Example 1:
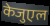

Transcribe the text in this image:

केजुएल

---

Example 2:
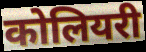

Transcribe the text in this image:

कोलियरी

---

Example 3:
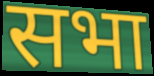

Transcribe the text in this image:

सभा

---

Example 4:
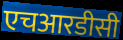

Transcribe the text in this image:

एचआरडीसी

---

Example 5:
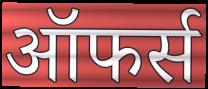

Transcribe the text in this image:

ऑफर्स